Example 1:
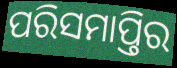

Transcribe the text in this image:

ପରିସମାପ୍ତିର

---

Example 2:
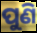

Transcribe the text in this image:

ପୁଣି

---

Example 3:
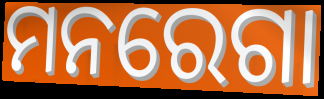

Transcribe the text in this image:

ମନରେଗା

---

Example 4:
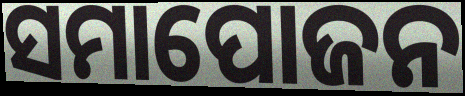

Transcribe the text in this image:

ସମାପୋଜନ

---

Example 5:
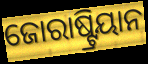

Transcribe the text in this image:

ଜୋରାଷ୍ଟ୍ରିୟାନ